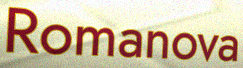
Romanova